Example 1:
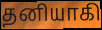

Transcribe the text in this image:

தனியாகி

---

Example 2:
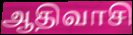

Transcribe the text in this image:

ஆதிவாசி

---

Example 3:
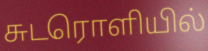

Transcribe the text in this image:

சுடரொளியில்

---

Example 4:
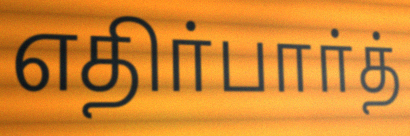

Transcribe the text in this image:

எதிர்பார்த்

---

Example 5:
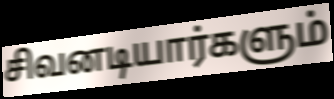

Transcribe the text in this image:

சிவனடியார்களும்